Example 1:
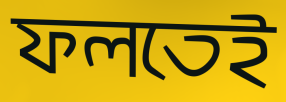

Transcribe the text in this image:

ফলতেই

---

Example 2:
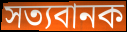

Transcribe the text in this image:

সত্যবানক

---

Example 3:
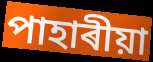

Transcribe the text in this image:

পাহাৰীয়া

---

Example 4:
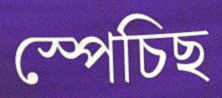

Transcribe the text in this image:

স্পেচিছ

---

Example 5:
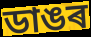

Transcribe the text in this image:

ডাঙৰ